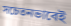
সচেতনভাবেই